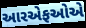
આરએફઓએ